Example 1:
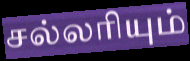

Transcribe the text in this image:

சல்லரியும்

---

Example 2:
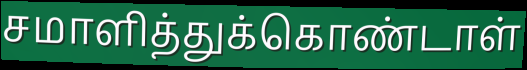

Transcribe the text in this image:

சமாளித்துக்கொண்டாள்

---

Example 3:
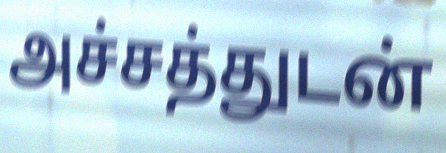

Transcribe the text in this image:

அச்சத்துடன்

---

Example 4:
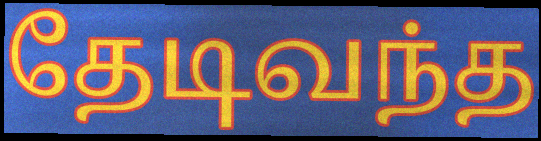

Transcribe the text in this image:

தேடிவந்த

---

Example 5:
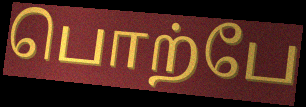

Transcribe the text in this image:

பொற்பே